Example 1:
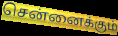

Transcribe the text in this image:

சென்னைக்கும்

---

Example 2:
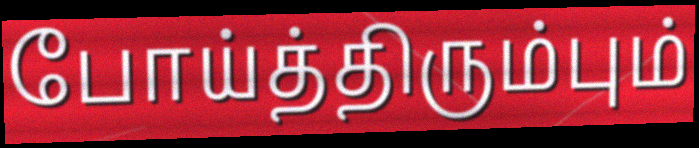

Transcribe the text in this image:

போய்த்திரும்பும்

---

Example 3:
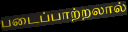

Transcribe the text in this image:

படைப்பாற்றலால்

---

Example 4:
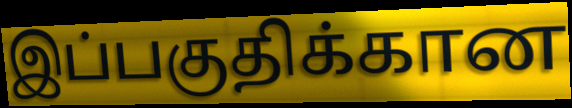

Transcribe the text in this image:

இப்பகுதிக்கான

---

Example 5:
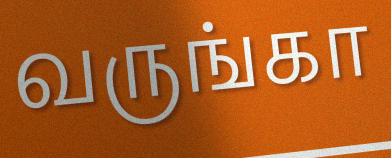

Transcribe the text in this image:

வருங்கா